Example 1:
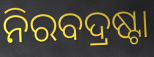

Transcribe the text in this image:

ନିରବଦ୍ରଷ୍ଟା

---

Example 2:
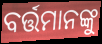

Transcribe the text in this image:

ବର୍ତ୍ତମାନଙ୍କୁ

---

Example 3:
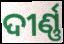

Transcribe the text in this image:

ଦୀର୍ଣ୍ଣ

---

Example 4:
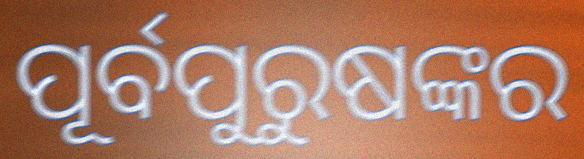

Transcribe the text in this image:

ପୂର୍ବପୁରୁଷଙ୍କର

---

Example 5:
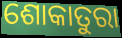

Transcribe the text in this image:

ଶୋକାତୁରା